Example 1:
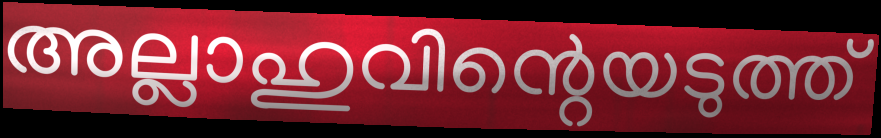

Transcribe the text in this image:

അല്ലാഹുവിന്റെയടുത്ത്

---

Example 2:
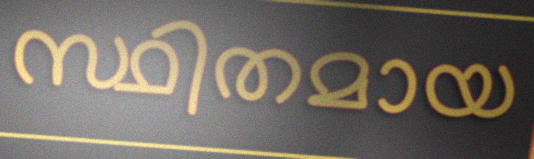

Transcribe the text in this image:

സ്ഥിതമായ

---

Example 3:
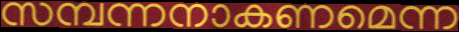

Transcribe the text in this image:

സമ്പന്നനാകണമെന്ന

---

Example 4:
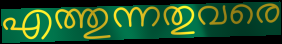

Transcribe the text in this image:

എത്തുന്നതുവരെ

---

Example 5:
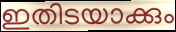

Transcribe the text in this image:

ഇതിടയാക്കും